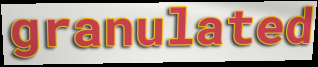
granulated